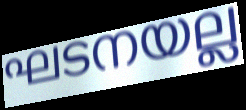
ഘടനയല്ല